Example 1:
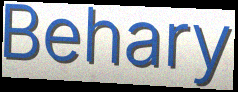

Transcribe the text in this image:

Behary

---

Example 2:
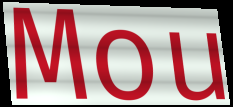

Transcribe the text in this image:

Mou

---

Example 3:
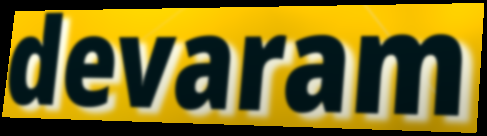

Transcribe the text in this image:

devaram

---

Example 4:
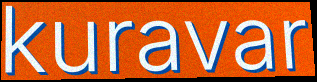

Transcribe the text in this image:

kuravar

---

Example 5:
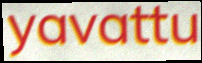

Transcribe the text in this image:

yavattu